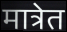
मात्रेत